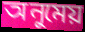
অনুমেয়